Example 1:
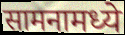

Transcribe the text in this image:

सामनामध्ये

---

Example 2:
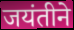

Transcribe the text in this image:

जयंतीने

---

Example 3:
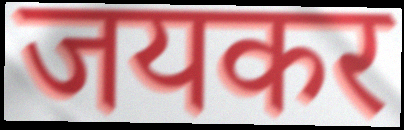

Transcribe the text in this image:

जयकर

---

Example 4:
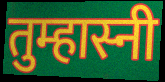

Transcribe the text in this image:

तुम्हास्नी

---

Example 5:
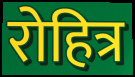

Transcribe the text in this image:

रोहित्र